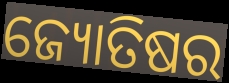
ଜ୍ୟୋତିଷର